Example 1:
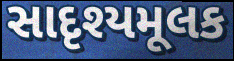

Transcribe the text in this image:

સાદૃશ્યમૂલક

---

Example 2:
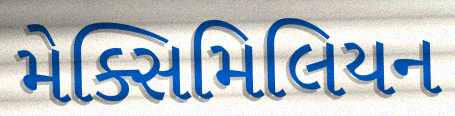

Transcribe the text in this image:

મેક્સિમિલિયન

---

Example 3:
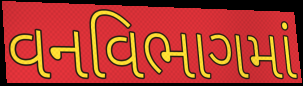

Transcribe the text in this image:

વનવિભાગમાં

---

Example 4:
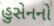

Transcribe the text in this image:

હુસેનનો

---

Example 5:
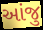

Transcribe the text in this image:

આંજુ